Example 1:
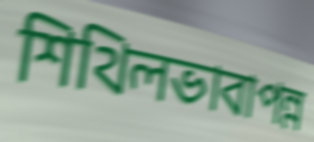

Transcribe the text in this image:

শিথিলভাবাপন্ন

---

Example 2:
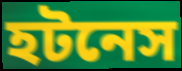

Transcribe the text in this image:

হটনেস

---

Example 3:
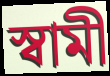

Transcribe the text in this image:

স্বামী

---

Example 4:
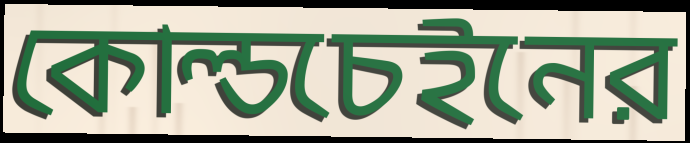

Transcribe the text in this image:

কোল্ডচেইনের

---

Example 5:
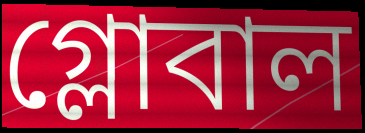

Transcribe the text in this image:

গ্লোবাল